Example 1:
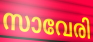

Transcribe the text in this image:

സാവേരി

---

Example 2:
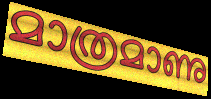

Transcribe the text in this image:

മാത്രമാണു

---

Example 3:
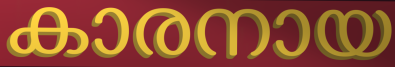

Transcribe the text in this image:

കാരനായ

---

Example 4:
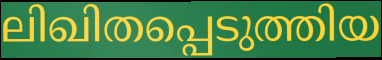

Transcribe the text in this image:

ലിഖിതപ്പെടുത്തിയ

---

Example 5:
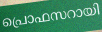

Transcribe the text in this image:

പ്രൊഫസറായി